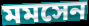
মমসেন